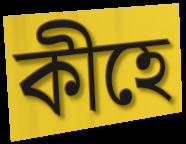
কীহে